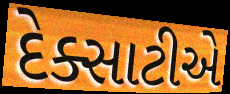
દેક્સાટીએ